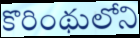
కొరింథులోని